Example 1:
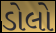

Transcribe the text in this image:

ડોલો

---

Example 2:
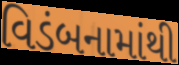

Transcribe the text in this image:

વિડંબનામાંથી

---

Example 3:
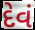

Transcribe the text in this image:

દેવં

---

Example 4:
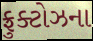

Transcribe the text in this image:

ફ્રુક્ટોઝના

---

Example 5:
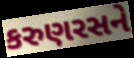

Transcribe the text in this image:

કરુણરસને